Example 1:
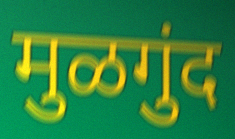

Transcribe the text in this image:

मुळगुंद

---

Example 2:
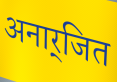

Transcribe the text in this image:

अनार्जित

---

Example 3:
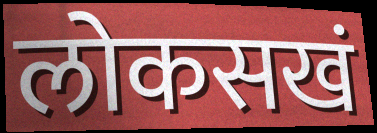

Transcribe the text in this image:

लोकसखं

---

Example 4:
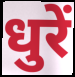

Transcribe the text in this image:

धुरें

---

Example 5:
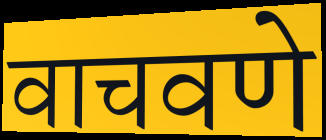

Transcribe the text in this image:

वाचवणे